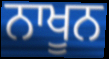
ਨਾਖੂਨ